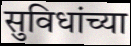
सुविधांच्या